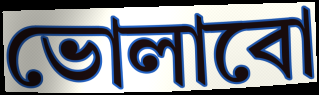
ভোলাবো